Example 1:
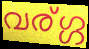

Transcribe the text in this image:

വര്ഗ്ഗ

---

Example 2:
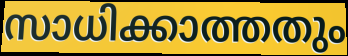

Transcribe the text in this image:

സാധിക്കാത്തതും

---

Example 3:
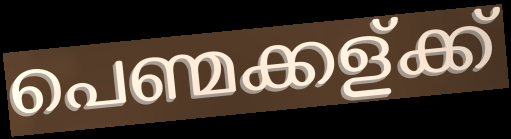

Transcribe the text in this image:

പെണ്മക്കള്ക്ക്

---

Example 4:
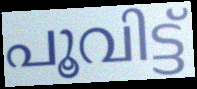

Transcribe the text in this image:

പൂവിട്ട്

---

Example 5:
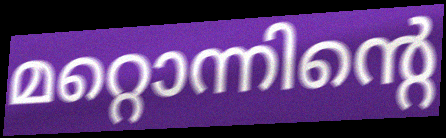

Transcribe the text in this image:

മറ്റൊന്നിന്റെ